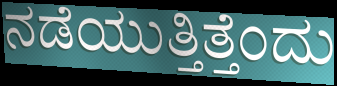
ನಡೆಯುತ್ತಿತ್ತೆಂದು